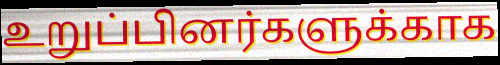
உறுப்பினர்களுக்காக